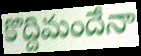
కొద్దిమందేనా